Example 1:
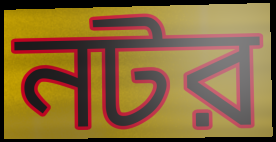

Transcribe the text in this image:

নটর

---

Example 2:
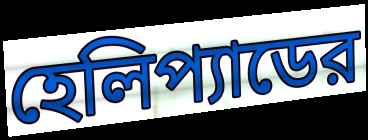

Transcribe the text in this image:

হেলিপ্যাডের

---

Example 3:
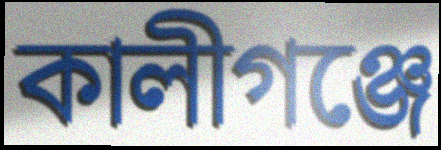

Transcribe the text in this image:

কালীগঞ্জে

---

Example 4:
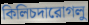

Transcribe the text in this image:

কিলিচদারোগলু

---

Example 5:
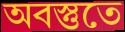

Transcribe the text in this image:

অবস্তুতে